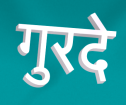
गुरदे